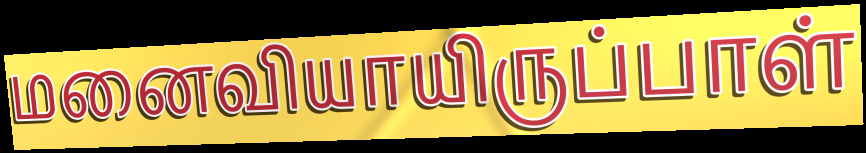
மனைவியாயிருப்பாள்